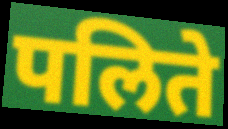
पलिते